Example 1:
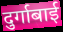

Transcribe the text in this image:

दुर्गाबाई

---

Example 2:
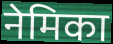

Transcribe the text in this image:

नेमिका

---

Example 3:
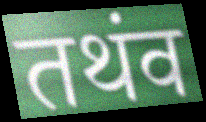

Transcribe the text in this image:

तथंव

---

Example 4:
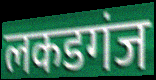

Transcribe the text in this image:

लकडगंज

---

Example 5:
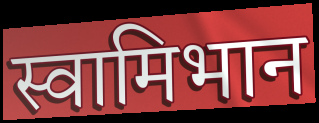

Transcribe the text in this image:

स्वामिभान